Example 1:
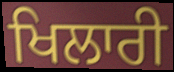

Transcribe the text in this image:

ਖਿਲਾਰੀ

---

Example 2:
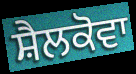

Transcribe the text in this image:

ਸ਼ੈਲਕੋਵਾ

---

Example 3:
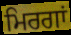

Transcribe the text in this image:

ਮਿਰਗਾਂ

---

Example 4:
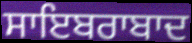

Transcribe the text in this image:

ਸਾਇਬਰਾਬਾਦ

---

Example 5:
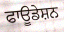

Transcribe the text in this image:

ਫਾਊਡੇਸ਼ਨ